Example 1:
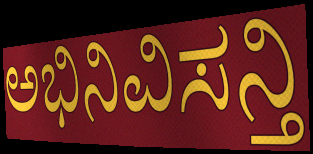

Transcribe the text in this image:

ಅಭಿನಿವಿಸನ್ತಿ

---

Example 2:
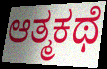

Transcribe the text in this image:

ಆತ್ಮಕಥೆ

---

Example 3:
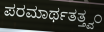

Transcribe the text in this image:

ಪರಮಾರ್ಥತತ್ತ್ವಂ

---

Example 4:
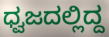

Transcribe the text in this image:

ಧ್ವಜದಲ್ಲಿದ್ದ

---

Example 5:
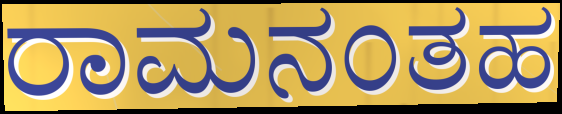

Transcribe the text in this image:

ರಾಮನಂತಹ